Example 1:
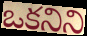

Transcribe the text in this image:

ఒకనిని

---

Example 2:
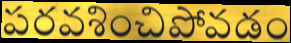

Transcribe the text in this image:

పరవశించిపోవడం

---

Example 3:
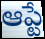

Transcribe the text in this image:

ఆప్టే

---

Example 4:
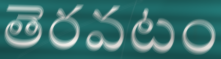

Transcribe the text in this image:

తెరవటం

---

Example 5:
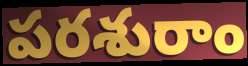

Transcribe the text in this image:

పరశురాం